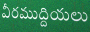
వీరముద్దియలు